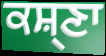
ਕਸ਼੍ਣਾ